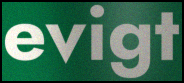
evigt